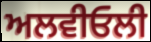
ਅਲਵੀਓਲੀ